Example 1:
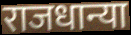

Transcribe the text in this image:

राजधान्या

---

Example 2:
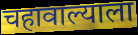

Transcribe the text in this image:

चहावाल्याला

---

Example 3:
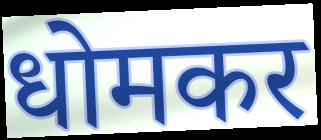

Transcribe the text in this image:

धोमकर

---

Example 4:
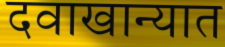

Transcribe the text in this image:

दवाखान्यात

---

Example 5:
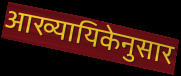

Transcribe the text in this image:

आख्यायिकेनुसार